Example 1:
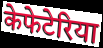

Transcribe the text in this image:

केफेटेरिया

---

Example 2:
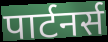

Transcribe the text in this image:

पार्टनर्स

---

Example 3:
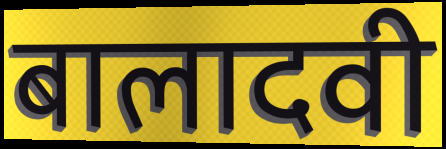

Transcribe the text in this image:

बालादवी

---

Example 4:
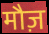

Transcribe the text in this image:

मौज़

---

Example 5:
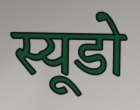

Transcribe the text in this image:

स्यूडो